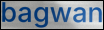
bagwan